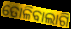
ତୋଳିବାଲାଗି